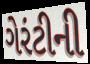
ગેરંટીની